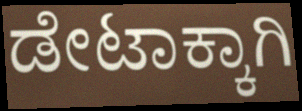
ಡೇಟಾಕ್ಕಾಗಿ